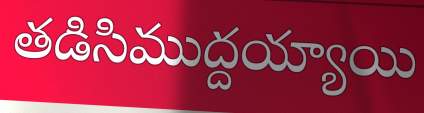
తడిసిముద్దయ్యాయి